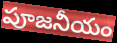
పూజనీయం